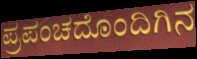
ಪ್ರಪಂಚದೊಂದಿಗಿನ